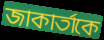
জাকার্তাকে